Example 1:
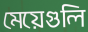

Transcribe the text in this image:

মেয়েগুলি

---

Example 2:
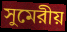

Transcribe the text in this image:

সুমেরীয়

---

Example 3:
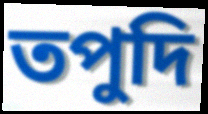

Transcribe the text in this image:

তপুদি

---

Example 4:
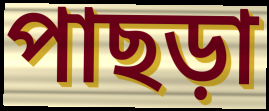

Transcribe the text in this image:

পাছড়া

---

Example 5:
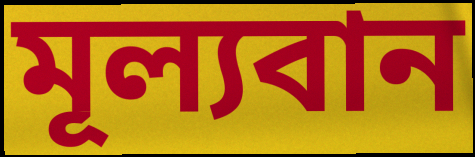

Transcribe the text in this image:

মূল্যবান